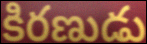
కిరణుడు